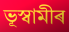
ভূস্বামীৰ